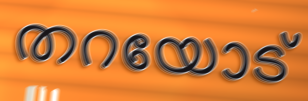
തറയോട്